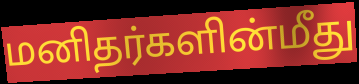
மனிதர்களின்மீது